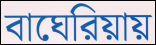
বাঘেরিয়ায়